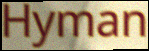
Hyman